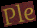
Ple